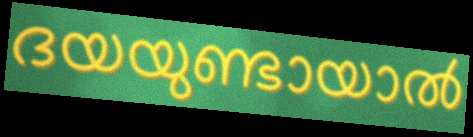
ദയയുണ്ടായാൽ